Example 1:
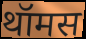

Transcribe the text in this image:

थॉमस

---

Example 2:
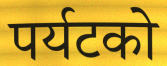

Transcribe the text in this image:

पर्यटको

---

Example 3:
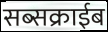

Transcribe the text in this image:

सब्सक्राईब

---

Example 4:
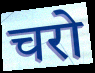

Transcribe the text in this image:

चरो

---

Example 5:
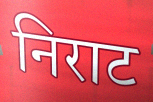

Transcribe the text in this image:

निराट